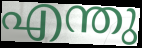
എന്തു